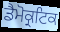
ਡੈਮੋਕ੍ਰਟਿਕ